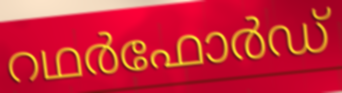
റഥർഫോർഡ്